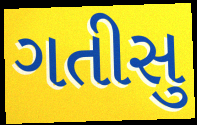
ગતીસુ